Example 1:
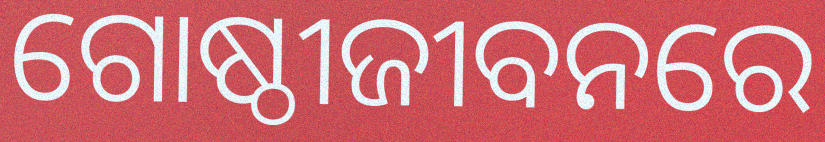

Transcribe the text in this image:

ଗୋଷ୍ଠୀଜୀବନରେ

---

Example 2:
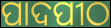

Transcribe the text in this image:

ପାଦପୀଠ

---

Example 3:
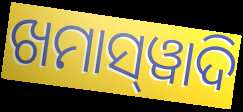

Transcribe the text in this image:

ଖମାସ୍‌ୱାଦି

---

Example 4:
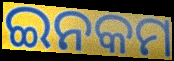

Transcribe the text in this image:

ଇନକମ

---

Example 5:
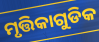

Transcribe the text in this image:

ମୃତ୍ତିକାଗୁଡିକ